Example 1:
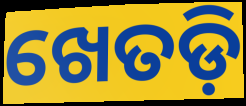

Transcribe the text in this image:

ଖେତଡ଼ି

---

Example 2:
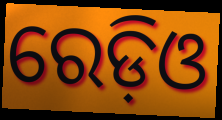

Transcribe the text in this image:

ରେଡ଼ିଓ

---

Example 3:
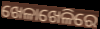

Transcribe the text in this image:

ଖେଳାଖେଳିରେ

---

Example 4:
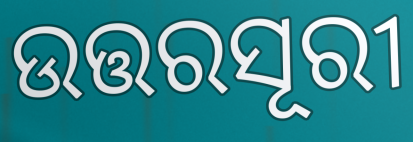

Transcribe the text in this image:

ଉତ୍ତରସୂରୀ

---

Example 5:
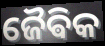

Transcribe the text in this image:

ଜୈଵିକ